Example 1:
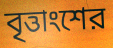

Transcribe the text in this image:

বৃত্তাংশের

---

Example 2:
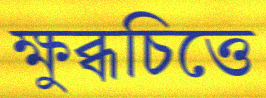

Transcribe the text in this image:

ক্ষুব্ধচিত্তে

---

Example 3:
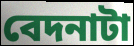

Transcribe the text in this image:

বেদনাটা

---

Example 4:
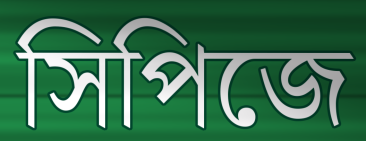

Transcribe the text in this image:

সিপিজে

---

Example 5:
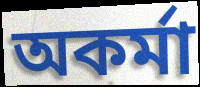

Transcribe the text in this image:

অকর্মা